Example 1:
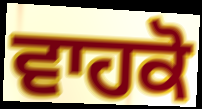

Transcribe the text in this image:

ਵਾਹਕੋ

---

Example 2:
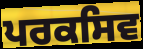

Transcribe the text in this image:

ਪਰਕਸਿਵ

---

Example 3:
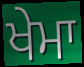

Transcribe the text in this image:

ਖੇਮਾ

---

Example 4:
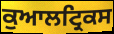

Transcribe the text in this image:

ਕੁਆਲਟ੍ਰਿਕਸ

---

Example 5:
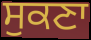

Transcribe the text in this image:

ਸੁਕਣਾ